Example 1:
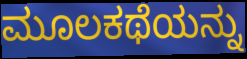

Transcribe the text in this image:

ಮೂಲಕಥೆಯನ್ನು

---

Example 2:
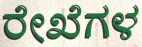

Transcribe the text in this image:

ರೇಖೆಗಳ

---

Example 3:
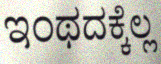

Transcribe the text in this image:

ಇಂಥದಕ್ಕೆಲ್ಲ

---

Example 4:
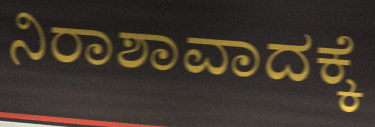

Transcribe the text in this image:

ನಿರಾಶಾವಾದಕ್ಕೆ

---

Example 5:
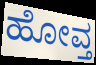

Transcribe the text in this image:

ಹೋವ್ತ